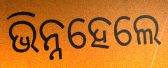
ଭିନ୍ନହେଲେ